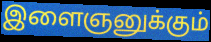
இளைஞனுக்கும்